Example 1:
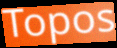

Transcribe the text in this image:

Topos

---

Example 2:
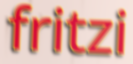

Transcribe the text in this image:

fritzi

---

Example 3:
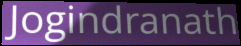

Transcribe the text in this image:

Jogindranath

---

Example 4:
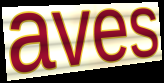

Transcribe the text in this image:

aves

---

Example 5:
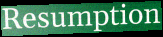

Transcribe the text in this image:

Resumption